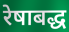
रेषाबद्ध